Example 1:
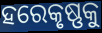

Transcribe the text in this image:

ହରେକୃଷ୍ଣକୁ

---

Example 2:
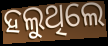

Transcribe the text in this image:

ହଲୁଥିଲେ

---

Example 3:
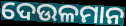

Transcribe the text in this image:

ଦେଉଳମାନ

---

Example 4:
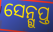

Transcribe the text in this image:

ସେନ୍ଗୁପ୍ତ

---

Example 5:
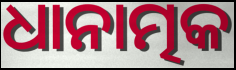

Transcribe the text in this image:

ଧାନାତ୍ମକ